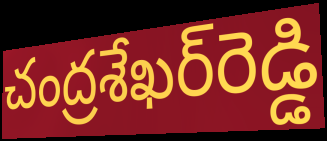
చంద్రశేఖర్‌రెడ్డి